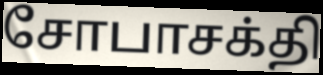
சோபாசக்தி